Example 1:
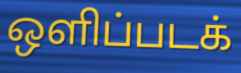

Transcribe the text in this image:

ஒளிப்படக்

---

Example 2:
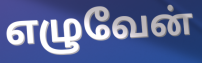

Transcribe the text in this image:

எழுவேன்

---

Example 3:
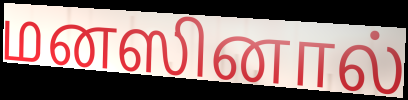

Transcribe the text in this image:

மனஸினால்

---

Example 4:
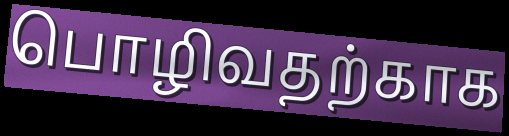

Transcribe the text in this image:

பொழிவதற்காக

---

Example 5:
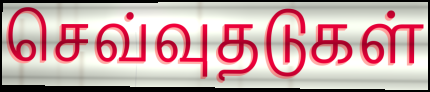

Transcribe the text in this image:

செவ்வுதடுகள்